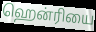
ஹென்ரியை